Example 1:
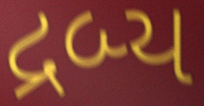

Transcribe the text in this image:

દ્રબ્ય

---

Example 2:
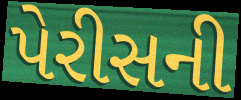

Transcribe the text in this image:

પેરીસની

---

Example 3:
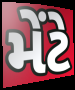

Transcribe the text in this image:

મેંટે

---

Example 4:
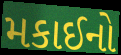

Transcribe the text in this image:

મકાઈનો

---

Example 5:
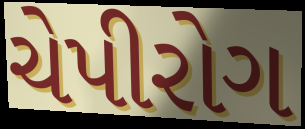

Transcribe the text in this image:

ચેપીરોગ